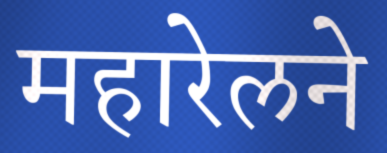
महारेलने